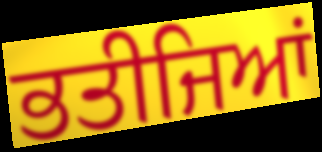
ਭਤੀਜਿਆਂ